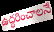
ఉద్ధరించాలనే